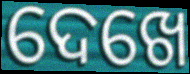
ଦେଖେ